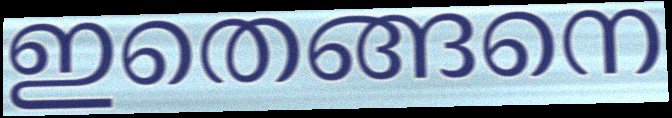
ഇതെങ്ങനെ